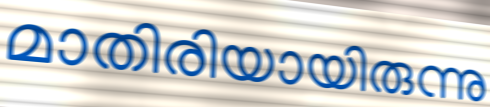
മാതിരിയായിരുന്നു